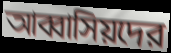
আব্বাসিয়দের